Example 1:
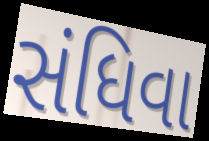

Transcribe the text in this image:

સંધિવા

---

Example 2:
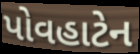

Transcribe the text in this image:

પોવહાટેન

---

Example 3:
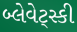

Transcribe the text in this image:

બ્લેવેટ્સ્કી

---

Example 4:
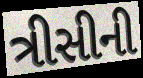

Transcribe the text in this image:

ત્રીસીની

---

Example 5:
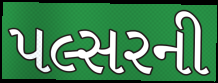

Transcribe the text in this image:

પલ્સરની